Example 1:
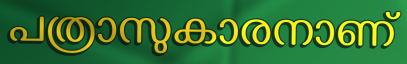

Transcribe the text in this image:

പത്രാസുകാരനാണ്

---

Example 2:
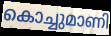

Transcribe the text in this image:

കൊച്ചുമാണി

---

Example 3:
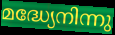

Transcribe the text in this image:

മദ്ധ്യേനിന്നു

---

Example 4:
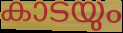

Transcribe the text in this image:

കാടയും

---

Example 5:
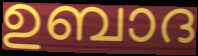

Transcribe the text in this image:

ഉബാദ